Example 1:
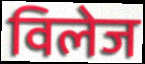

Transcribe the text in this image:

विलेज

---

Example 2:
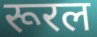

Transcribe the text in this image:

रूरल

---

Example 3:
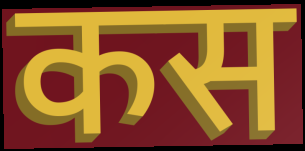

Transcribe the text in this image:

कस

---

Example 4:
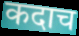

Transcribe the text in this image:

कदाच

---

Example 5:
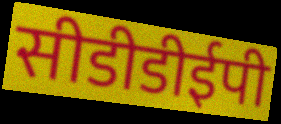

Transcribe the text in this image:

सीडीडीईपी